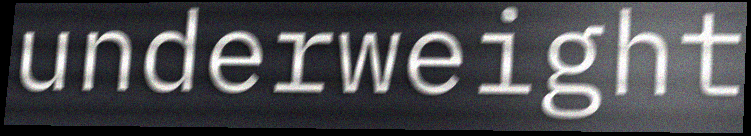
underweight